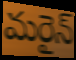
మరైన్